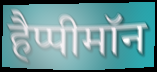
हैप्पीमॉन